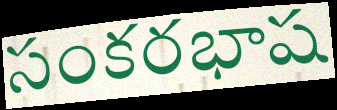
సంకరభాష